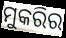
ମୁକରିର